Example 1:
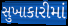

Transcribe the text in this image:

સુખાકારીમાં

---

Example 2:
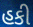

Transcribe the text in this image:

હકી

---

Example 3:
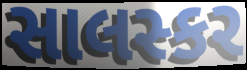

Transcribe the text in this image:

સાલસ્કર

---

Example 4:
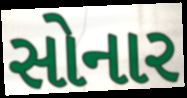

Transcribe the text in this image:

સોનાર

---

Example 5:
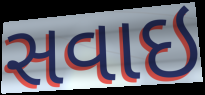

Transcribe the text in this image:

સવાઇ